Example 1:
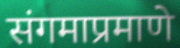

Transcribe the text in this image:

संगमाप्रमाणे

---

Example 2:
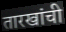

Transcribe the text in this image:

तारखांची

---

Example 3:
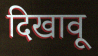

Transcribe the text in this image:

दिखावू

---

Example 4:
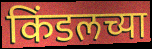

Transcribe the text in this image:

किंडलच्या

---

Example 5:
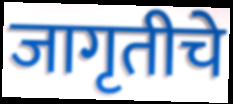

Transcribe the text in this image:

जागृतीचे